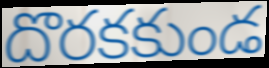
దొరకకుండ